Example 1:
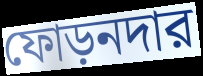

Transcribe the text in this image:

ফোড়নদার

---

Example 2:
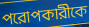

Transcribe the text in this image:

পরোপকারীকে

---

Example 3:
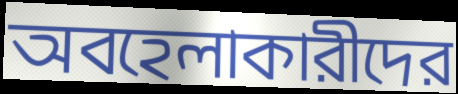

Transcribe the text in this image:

অবহেলাকারীদের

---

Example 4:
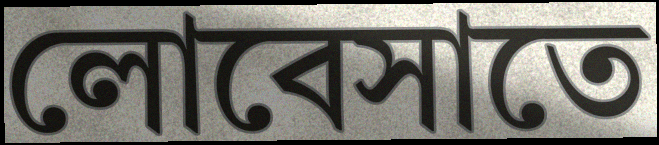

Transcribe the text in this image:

লোবেসাতে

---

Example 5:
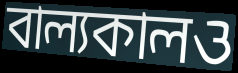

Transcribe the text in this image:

বাল্যকালও